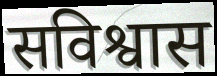
सविश्वास